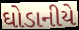
ઘોડાનીયે